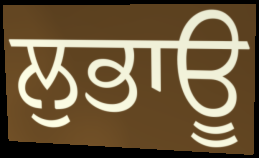
ਲੁਭਾਊ